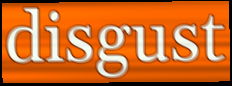
disgust